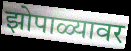
झोपाळ्यावर